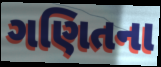
ગણિતના